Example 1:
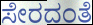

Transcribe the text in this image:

ಸೇರದಂತೆ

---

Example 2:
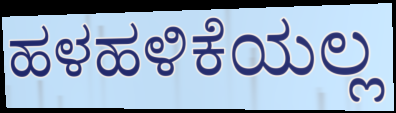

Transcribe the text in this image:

ಹಳಹಳಿಕೆಯಲ್ಲ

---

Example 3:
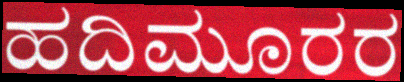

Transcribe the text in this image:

ಹದಿಮೂರರ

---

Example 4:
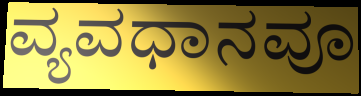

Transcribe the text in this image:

ವ್ಯವಧಾನವೂ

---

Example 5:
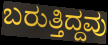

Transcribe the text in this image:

ಬರುತ್ತಿದ್ದವು